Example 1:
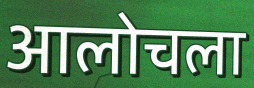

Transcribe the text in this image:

आलोचला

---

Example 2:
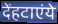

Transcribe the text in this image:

देंहटाएंये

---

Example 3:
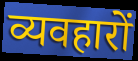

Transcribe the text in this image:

व्यवहारों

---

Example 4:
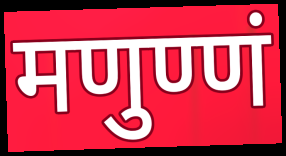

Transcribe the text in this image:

मणुण्णं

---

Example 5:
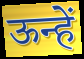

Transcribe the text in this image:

ऊन्हें